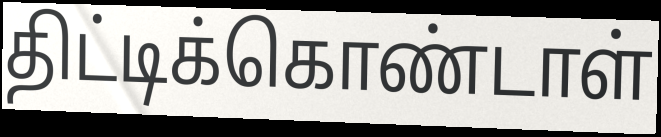
திட்டிக்கொண்டாள்